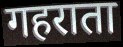
गहराता